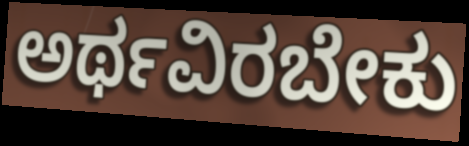
ಅರ್ಥವಿರಬೇಕು